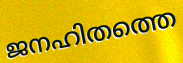
ജനഹിതത്തെ